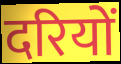
दरियों